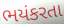
ભયંકરતા